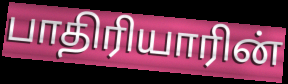
பாதிரியாரின்